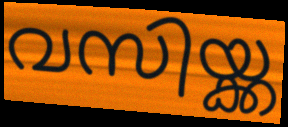
വസിയ്ക്ക